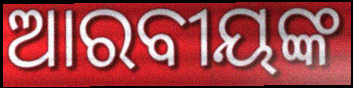
ଆରବୀୟଙ୍କ